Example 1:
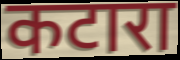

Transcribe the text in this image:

कटारा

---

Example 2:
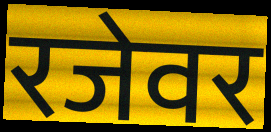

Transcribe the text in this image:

रजेवर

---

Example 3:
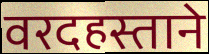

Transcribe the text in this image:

वरदहस्ताने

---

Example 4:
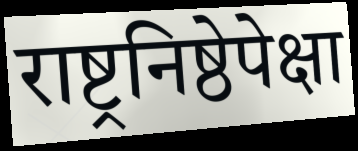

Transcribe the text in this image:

राष्ट्रनिष्ठेपेक्षा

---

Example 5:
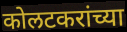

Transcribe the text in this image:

कोलटकरांच्या